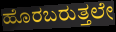
ಹೊರಬರುತ್ತಲೇ